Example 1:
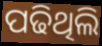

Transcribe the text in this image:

ପଢିଥିଲି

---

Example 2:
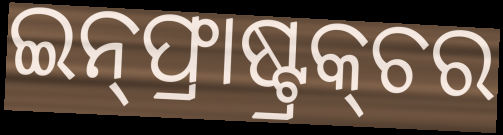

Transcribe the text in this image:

ଇନ୍‌ଫ୍ରାଷ୍ଟ୍ରକ୍‌ଚର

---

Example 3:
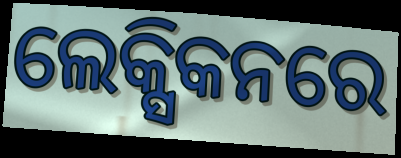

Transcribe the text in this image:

ଲେକ୍ସିକନରେ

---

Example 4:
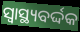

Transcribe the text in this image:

ସ୍ଵାସ୍ଥ୍ୟବର୍ଦ୍ଦକ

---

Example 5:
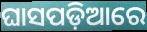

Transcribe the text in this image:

ଘାସପଡ଼ିଆରେ